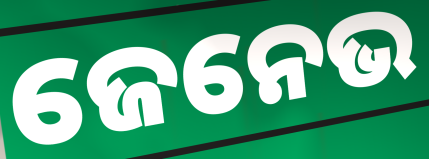
ଜେନେଭ